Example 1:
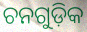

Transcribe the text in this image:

ଚନଗୁଡ଼ିକ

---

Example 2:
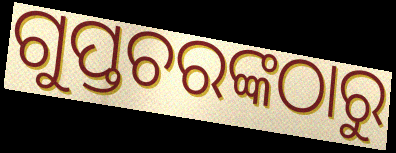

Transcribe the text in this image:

ଗୁପ୍ତଚରଙ୍କଠାରୁ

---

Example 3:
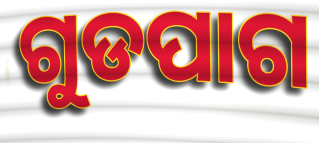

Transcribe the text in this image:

ଗୁଡପାଗ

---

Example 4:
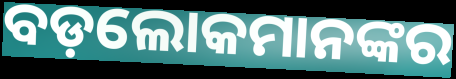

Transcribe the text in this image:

ବଡ଼ଲୋକମାନଙ୍କର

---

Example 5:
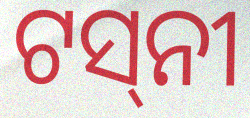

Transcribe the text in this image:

ଟସ୍‌ନୀ